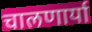
चालणार्या